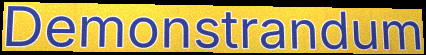
Demonstrandum